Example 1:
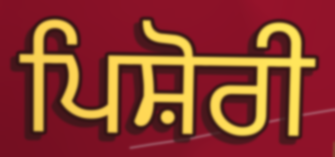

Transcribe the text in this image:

ਪਿਸ਼ੋਰੀ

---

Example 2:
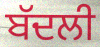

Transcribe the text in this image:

ਬੱਦਲੀ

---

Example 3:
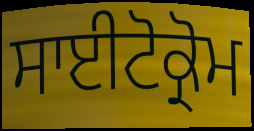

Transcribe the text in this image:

ਸਾਈਟੋਕ੍ਰੋਮ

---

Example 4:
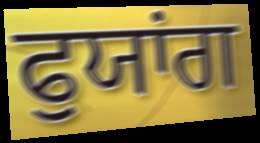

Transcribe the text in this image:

ਫੁਯਾਂਗ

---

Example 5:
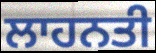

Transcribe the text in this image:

ਲਾਹਨਤੀ